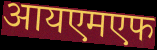
आयएमएफ